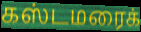
கஸ்டமரைக்